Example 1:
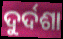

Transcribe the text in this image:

ଦୁର୍ଦଶା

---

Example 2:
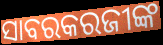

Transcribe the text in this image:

ସାବରକରଜୀଙ୍କ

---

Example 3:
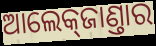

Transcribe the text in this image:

ଆଲେକ୍‌ଜାଣ୍ତାର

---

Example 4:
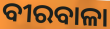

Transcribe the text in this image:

ବୀରବାଳା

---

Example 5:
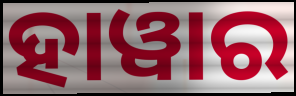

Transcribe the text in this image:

ହାୱାର